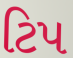
ટિપ